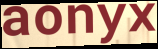
aonyx